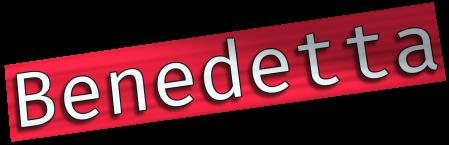
Benedetta